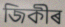
জিকীৰ